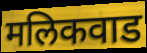
मलिकवाड